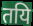
तयि